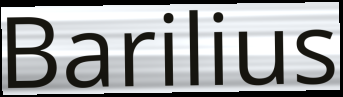
Barilius